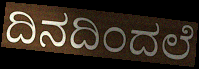
ದಿನದಿಂದಲೆ